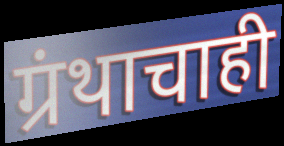
ग्रंथाचाही